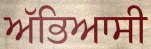
ਅੱਭਿਆਸੀ